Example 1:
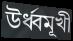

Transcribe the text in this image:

উর্ধ্বমূখী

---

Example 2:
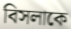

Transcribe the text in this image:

বিসলাকে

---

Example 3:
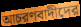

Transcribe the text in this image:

আচরণবাদীদের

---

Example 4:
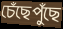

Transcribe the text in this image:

চেঁছেপুঁছে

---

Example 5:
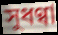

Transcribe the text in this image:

সুধণ্বা